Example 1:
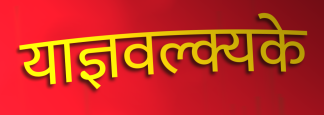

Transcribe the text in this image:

याज्ञवल्क्यके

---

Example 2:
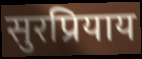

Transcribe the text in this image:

सुरप्रियाय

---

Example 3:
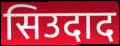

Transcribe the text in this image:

सिउदाद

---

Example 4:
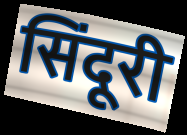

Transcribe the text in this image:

सिंदूरी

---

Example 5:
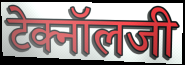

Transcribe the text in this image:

टेक्नॉलजी